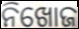
ନିଖୋଜ